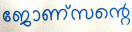
ജോണ്സന്റെ